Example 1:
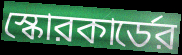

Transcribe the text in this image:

স্কোরকার্ডের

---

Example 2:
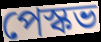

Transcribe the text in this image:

পেস্কভ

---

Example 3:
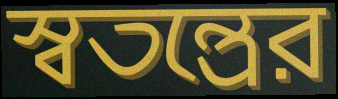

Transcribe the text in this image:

স্বতন্ত্রের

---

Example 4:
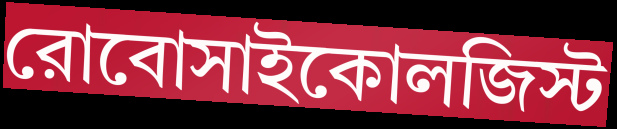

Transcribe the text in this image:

রোবোসাইকোলজিস্ট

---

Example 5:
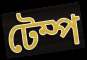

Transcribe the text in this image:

টেম্প